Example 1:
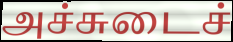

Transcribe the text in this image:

அச்சுடைச்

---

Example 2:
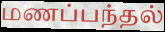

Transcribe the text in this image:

மணப்பந்தல்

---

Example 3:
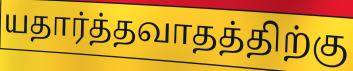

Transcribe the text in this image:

யதார்த்தவாதத்திற்கு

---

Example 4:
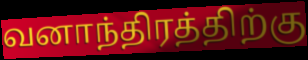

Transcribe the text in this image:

வனாந்திரத்திற்கு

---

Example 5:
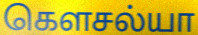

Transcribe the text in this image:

கௌசல்யா